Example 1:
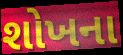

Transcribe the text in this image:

શોખના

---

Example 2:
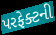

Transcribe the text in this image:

પરફેક્ટની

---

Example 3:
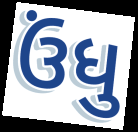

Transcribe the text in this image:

ઉંધુ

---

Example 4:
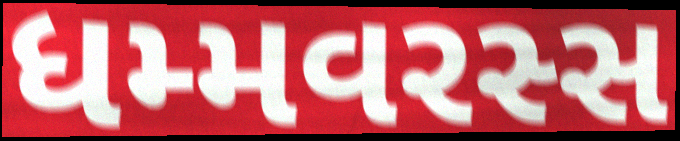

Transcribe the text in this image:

ધમ્મવરસ્સ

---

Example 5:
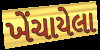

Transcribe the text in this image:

ખેંચાયેલા